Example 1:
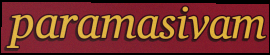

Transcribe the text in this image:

paramasivam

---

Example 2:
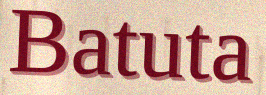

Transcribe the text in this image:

Batuta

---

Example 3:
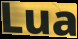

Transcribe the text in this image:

Lua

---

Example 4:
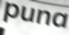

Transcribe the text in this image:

puna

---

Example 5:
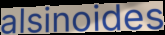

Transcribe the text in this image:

alsinoides